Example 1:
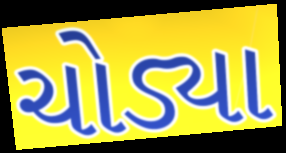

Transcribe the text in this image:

ચોડ્યા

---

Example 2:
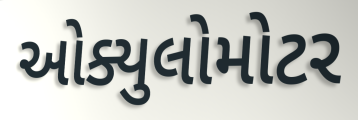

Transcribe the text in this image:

ઓક્યુલોમોટર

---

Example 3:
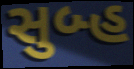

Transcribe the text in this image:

સુબ્હ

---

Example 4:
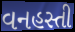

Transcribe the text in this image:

વનહસ્તી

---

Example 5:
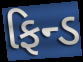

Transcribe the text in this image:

ફિન્ડ